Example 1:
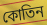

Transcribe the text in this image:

কোতিন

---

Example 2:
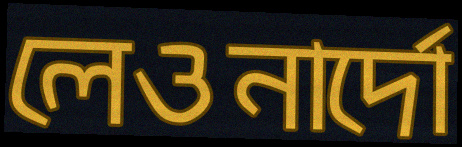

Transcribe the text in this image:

লেওনার্দো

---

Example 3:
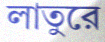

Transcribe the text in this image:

লাতুরে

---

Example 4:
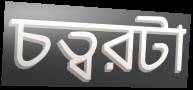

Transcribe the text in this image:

চত্বরটা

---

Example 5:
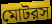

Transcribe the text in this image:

মোটরস